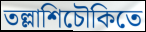
তল্লাশিচৌকিতে